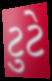
ટુટે